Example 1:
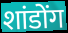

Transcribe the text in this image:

शांडोंग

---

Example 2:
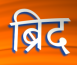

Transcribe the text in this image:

ब्रिद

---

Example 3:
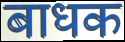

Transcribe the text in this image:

बाधक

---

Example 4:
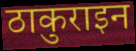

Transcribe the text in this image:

ठाकुराइन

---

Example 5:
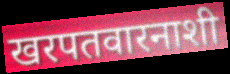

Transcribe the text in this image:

खरपतवारनाशी